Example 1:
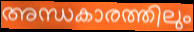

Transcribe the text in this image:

അന്ധകാരത്തിലും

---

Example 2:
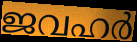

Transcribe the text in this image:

ജവഹർ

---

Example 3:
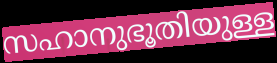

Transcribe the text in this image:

സഹാനുഭൂതിയുള്ള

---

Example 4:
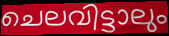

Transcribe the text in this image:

ചെലവിട്ടാലും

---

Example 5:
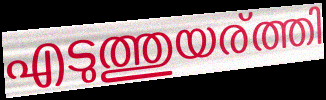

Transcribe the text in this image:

എടുത്തുയര്ത്തി